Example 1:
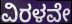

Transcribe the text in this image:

ವಿರಳವೇ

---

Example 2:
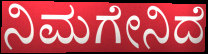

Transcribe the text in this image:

ನಿಮಗೇನಿದೆ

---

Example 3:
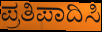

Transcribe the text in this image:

ಪ್ರತಿಪಾದಿಸಿ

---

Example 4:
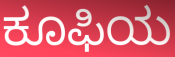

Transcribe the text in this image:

ಕೂಫಿಯ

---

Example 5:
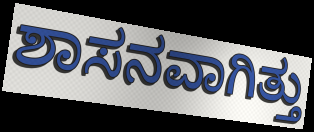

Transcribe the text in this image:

ಶಾಸನವಾಗಿತ್ತು